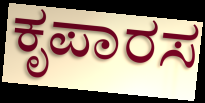
ಕೃಪಾರಸ